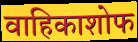
वाहिकाशोफ